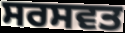
ਸਰਸਵਤ